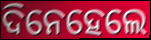
ଦିନେହେଲେ